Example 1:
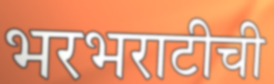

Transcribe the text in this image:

भरभराटीची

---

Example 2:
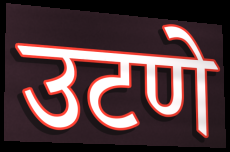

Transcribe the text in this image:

उटणे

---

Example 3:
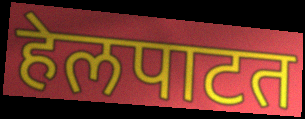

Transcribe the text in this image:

हेलपाटत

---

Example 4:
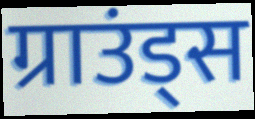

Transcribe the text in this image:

ग्राउंड्स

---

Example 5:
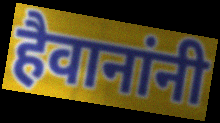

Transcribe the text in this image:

हैवानांनी